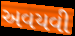
અવયવી